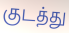
குடத்து